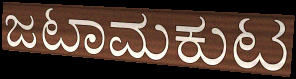
ಜಟಾಮಕುಟ